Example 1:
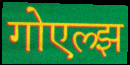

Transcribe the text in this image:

गोएल्झ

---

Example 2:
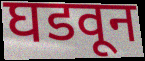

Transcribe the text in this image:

घडवून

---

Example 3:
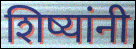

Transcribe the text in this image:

शिष्यांनी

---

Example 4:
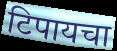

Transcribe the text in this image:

टिपायचा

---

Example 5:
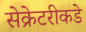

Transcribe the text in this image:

सेक्रेटरीकडे